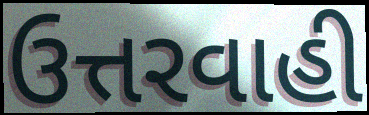
ઉત્તરવાહી